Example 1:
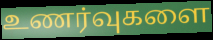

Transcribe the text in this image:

உணர்வுகளை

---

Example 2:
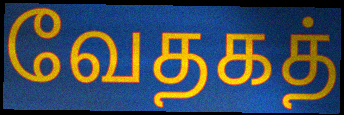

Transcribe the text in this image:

வேதகத்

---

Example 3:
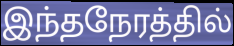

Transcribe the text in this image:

இந்தநேரத்தில்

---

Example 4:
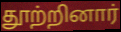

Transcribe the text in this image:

தூற்றினார்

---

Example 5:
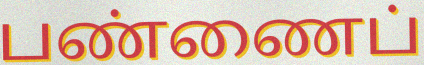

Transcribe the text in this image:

பண்ணைப்